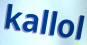
kallol